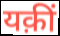
यक़ीं